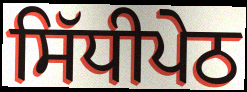
ਸਿੱਧੀਪੇਠ